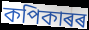
কপিকাৰৰ